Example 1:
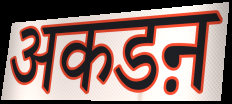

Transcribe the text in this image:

अकडऩ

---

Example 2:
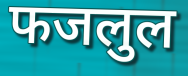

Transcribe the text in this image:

फजलुल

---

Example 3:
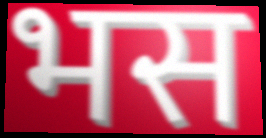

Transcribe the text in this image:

भस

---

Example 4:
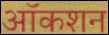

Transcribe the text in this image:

ऑकशन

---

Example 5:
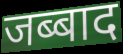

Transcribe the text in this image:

जब्बाद